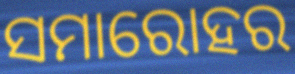
ସମାରୋହର